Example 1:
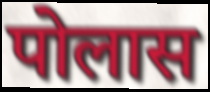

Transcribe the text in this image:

पोलास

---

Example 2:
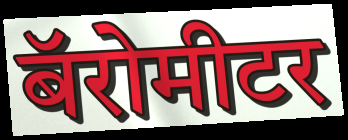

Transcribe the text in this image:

बॅरोमीटर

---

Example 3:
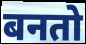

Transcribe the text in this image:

बनतो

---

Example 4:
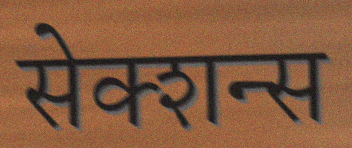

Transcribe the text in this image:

सेक्शन्स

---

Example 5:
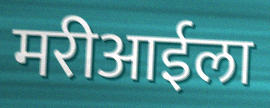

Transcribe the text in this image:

मरीआईला